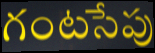
గంటసేపు